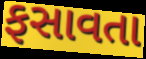
ફસાવતા